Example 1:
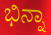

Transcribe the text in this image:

ಭಿನ್ನಾ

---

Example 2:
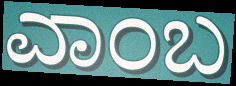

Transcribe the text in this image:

ಎಾಂಬ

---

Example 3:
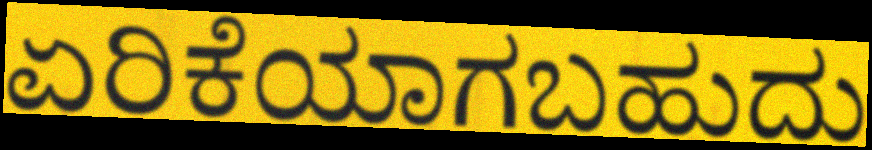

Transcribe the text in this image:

ಏರಿಕೆಯಾಗಬಹುದು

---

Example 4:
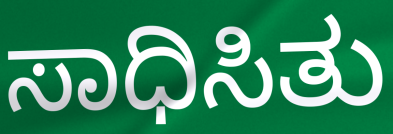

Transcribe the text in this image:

ಸಾಧಿಸಿತು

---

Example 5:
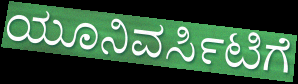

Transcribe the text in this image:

ಯೂನಿವರ್ಸಿಟಿಗೆ